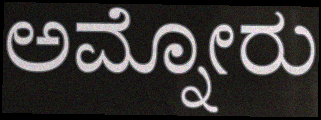
ಅಮ್ನೋರು